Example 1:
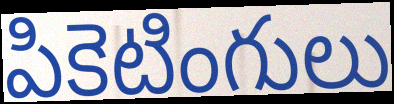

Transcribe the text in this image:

పికెటింగులు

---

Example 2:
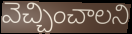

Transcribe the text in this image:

వెచ్చించాలని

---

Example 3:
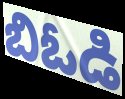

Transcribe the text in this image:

బిఓడి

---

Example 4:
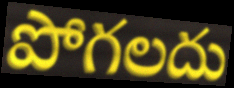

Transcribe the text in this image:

పోగలదు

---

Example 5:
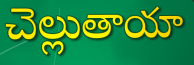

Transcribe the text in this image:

చెల్లుతాయా